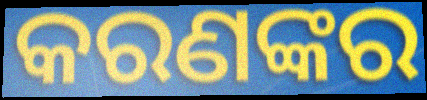
କରଣଙ୍କର